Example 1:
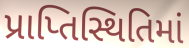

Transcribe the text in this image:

પ્રાપ્તિસ્થિતિમાં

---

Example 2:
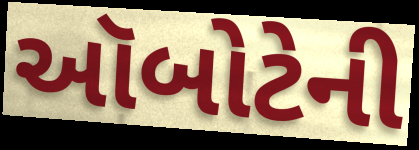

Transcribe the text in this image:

ઑબોટેની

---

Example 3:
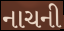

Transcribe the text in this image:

નાચની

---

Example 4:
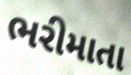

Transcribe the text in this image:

ભરીમાતા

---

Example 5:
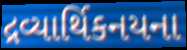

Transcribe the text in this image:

દ્રવ્યાર્થિકનયના